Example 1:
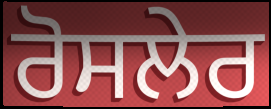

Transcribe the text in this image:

ਰੋਸਲੇਰ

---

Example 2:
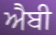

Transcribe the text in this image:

ਐਬੀ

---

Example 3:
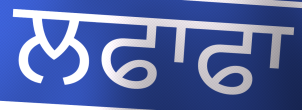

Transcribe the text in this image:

ਲਫਾਫਾ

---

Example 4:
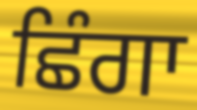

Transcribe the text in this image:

ਛਿੰਗਾ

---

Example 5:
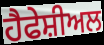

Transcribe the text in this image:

ਹੈਫੇਸ਼ੀਅਲ